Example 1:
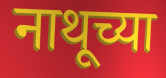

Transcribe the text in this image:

नाथूच्या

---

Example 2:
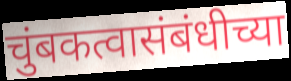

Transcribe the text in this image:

चुंबकत्वासंबंधीच्या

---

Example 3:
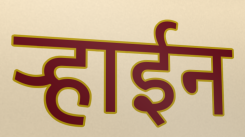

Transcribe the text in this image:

ऱ्हाईन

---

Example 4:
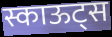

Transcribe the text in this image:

स्काऊट्स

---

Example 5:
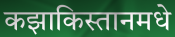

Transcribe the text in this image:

कझाकिस्तानमधे